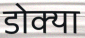
डोक्या